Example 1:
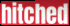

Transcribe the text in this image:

hitched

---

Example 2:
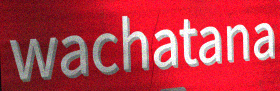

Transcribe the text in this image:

wachatana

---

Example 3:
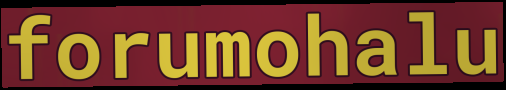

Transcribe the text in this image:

forumohalu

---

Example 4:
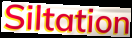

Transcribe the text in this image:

Siltation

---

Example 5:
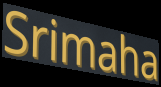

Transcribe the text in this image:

Srimaha